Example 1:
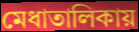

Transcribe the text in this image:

মেধাতালিকায়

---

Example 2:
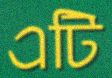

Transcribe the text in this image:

এটি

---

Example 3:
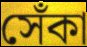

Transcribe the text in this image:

সেঁকা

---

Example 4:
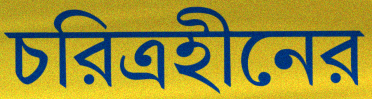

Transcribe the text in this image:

চরিত্রহীনের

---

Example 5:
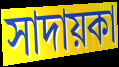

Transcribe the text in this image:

সাদায়কা